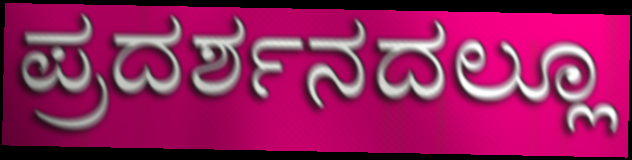
ಪ್ರದರ್ಶನದಲ್ಲೂ